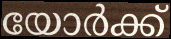
യോർക്ക്